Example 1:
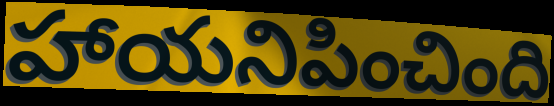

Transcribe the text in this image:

హాయనిపించింది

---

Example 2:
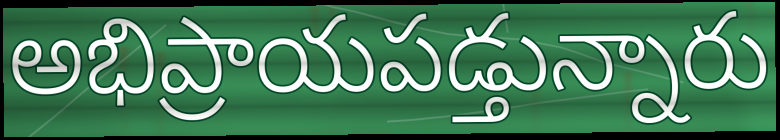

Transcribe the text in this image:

అభిప్రాయపడ్తున్నారు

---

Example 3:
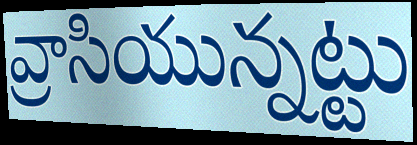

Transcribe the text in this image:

వ్రాసియున్నట్టు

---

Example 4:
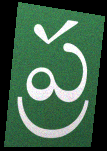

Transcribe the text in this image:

ప్ర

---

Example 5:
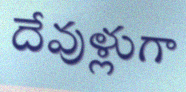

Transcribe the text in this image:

దేవుళ్లుగా